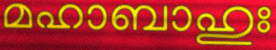
മഹാബാഹുഃ